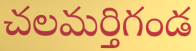
చలమర్తిగండ